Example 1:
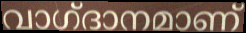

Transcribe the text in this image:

വാഗ്‌ദാനമാണ്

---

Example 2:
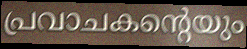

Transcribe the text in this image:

പ്രവാചകന്റെയും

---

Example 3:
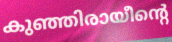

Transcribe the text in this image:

കുഞ്ഞിരായീന്റെ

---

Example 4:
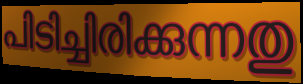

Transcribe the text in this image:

പിടിച്ചിരിക്കുന്നതു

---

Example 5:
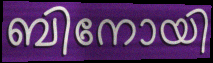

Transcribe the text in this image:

ബിനോയി